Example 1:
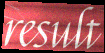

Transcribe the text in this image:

result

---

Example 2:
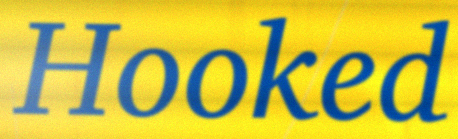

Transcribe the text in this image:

Hooked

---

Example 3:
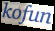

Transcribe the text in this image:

kofun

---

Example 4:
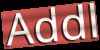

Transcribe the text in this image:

Addl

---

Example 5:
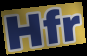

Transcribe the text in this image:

Hfr